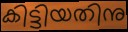
കിട്ടിയതിനു